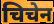
चिचेन